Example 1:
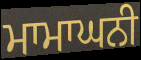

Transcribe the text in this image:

ਮਾਮਾਘਨੀ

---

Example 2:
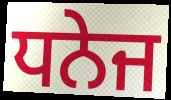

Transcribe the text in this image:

ਧਨੇਜ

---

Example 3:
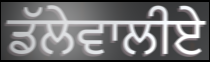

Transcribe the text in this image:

ਡੱਲੇਵਾਲੀਏ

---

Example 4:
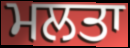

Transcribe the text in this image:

ਮਲਤਾ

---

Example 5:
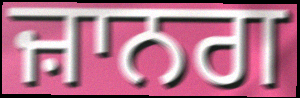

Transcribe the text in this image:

ਜ਼ਾਨਗ